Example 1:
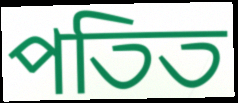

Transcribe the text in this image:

পতিত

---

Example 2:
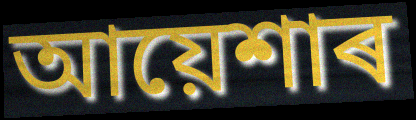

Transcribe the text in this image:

আয়েশাৰ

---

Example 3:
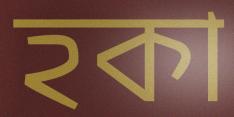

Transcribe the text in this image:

হকা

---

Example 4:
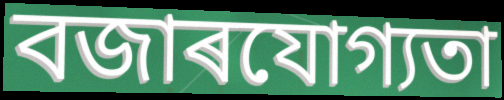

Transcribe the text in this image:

বজাৰযোগ্যতা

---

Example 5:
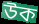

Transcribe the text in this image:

উক